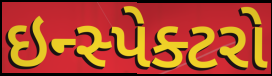
ઇન્સ્પેક્ટરો